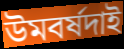
উমবৰ্ষদাই